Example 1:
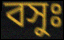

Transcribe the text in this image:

বসুঃ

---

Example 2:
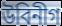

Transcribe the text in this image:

উবিনীগ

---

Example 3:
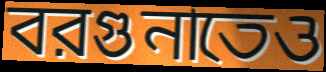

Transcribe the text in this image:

বরগুনাতেও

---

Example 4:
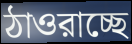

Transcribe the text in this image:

ঠাওরাচ্ছে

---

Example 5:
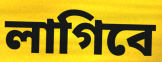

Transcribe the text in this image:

লাগিবে